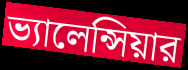
ভ্যালেন্সিয়ার